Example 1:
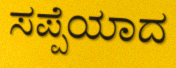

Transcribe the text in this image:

ಸಪ್ಪೆಯಾದ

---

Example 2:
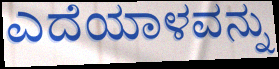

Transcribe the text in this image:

ಎದೆಯಾಳವನ್ನು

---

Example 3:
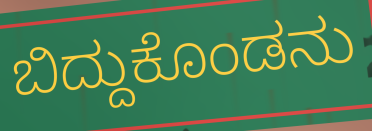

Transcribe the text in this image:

ಬಿದ್ದುಕೊಂಡನು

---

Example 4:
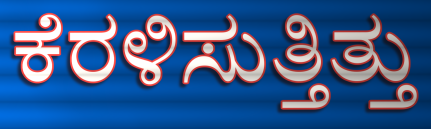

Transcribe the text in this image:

ಕೆರಳಿಸುತ್ತಿತ್ತು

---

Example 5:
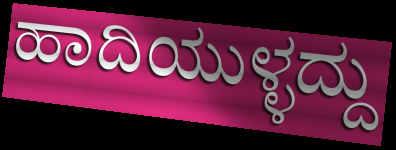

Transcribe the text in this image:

ಹಾದಿಯುಳ್ಳದ್ದು